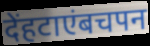
देंहटाएंबचपन